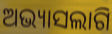
ଅଭ୍ୟାସଲାଗି